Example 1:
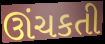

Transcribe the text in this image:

ઊંચકતી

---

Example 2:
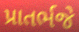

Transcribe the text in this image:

પ્રાતર્ભજે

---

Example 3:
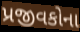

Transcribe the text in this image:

પ્રજીવકોના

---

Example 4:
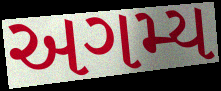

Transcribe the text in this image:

અગમ્ય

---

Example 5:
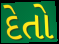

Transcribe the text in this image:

દેતો